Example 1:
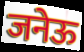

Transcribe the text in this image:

जनेऊ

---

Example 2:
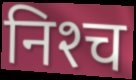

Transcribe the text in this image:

निश्च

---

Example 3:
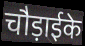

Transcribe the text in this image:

चौड़ाईके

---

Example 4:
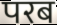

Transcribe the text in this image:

परब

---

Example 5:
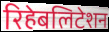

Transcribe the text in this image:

रिहेबलिटेशन